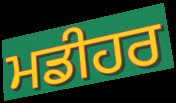
ਮਡੀਹਰ